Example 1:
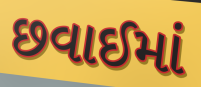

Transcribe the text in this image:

છવાઈમાં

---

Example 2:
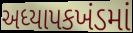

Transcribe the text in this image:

અધ્યાપકખંડમાં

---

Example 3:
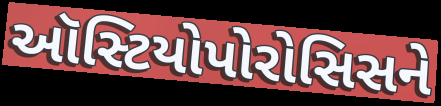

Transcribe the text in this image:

ઑસ્ટિયોપોરોસિસને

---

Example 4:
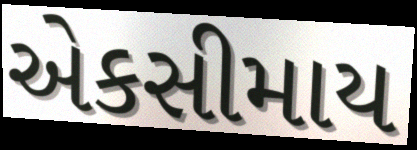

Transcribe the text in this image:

એકસીમાય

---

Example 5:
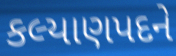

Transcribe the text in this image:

કલ્યાણપદને